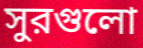
সুরগুলো